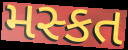
મસ્કત